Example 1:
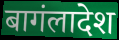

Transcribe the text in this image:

बागंलादेश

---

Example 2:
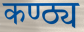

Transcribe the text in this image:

कण्ठ्य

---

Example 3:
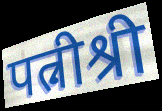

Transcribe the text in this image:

पत्नीश्री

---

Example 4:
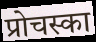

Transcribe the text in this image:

प्रोचस्का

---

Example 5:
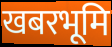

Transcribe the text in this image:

खबरभूमि